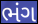
ભંગ